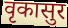
वृकासुर